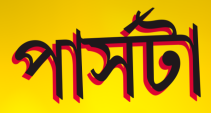
পার্সটা